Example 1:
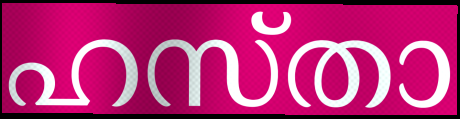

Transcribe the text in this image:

ഹസ്താ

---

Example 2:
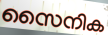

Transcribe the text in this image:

സൈനിക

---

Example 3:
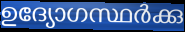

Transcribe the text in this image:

ഉദ്യോഗസ്ഥർക്കു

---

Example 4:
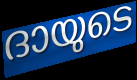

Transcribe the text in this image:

ദായുടെ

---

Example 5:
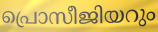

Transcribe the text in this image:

പ്രൊസീജിയറും